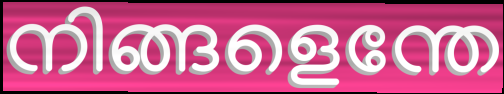
നിങ്ങളെന്തേ